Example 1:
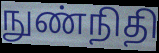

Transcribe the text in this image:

நுண்நிதி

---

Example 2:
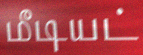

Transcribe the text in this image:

மீடியட்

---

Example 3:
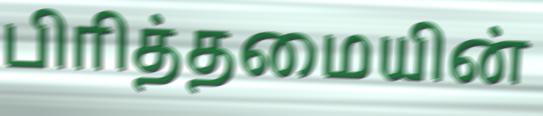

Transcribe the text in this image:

பிரித்தமையின்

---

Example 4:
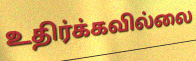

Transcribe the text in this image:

உதிர்க்கவில்லை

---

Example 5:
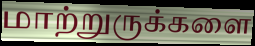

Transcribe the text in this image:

மாற்றுருக்களை